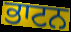
ਭਾਟਨ